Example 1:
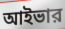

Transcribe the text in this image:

আইভার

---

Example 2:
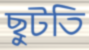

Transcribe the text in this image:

ছুটতি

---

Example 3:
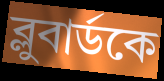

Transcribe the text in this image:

ব্লুবার্ডকে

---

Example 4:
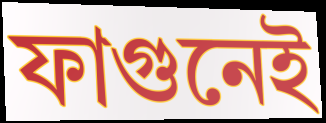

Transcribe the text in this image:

ফাগুনেই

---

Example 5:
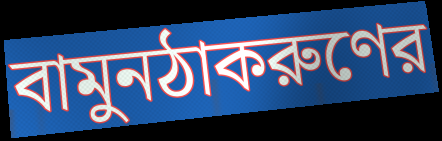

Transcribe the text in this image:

বামুনঠাকরুণের